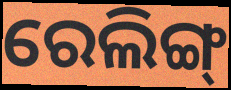
ରେଲିଙ୍ଗ୍